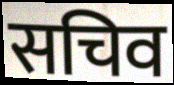
सचिव